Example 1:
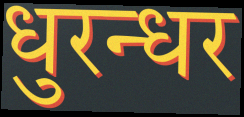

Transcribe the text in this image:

धुरन्धर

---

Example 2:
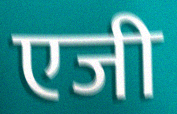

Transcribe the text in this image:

एजी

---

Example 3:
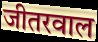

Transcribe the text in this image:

जीतरवाल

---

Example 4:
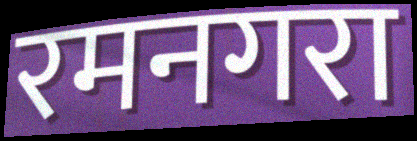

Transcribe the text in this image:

रमनगरा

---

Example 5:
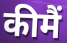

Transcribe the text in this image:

कीमैं